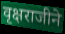
वृक्षराजीने